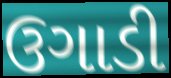
ઉગાડી